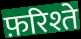
फ़रिश्ते